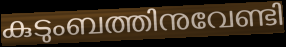
കുടുംബത്തിനുവേണ്ടി